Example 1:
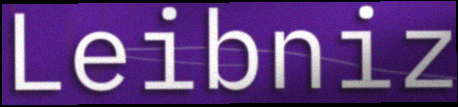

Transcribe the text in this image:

Leibniz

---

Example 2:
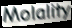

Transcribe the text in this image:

Molality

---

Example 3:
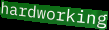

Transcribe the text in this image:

hardworking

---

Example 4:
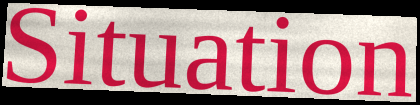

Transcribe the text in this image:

Situation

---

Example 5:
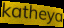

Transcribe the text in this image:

katheya